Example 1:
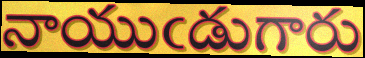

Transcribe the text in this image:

నాయుఁడుగారు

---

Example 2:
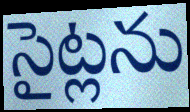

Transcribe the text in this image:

సైట్లను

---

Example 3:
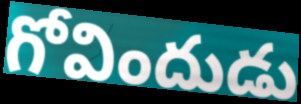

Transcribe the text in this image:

గోవిందుడు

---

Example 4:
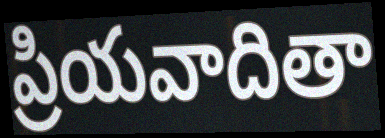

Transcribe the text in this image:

ప్రియవాదితా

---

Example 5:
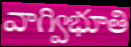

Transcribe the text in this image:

వాగ్విభూతి